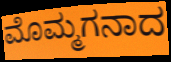
ಮೊಮ್ಮಗನಾದ